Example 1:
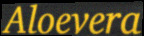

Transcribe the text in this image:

Aloevera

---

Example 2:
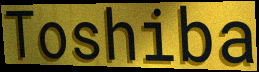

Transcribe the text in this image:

Toshiba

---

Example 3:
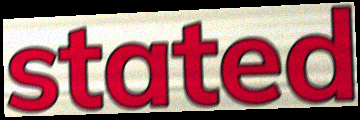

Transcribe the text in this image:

stated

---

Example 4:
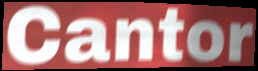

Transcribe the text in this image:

Cantor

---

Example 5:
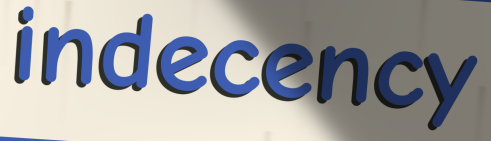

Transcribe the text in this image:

indecency